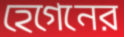
হেগেনের